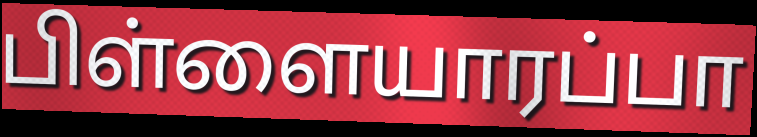
பிள்ளையாரப்பா